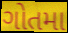
ગોતમા